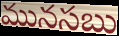
మునసబు